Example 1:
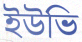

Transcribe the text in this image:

ইউভি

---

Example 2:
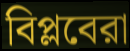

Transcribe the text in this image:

বিপ্লবেরা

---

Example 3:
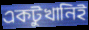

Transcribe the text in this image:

একটুখানিই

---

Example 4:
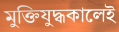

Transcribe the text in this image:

মুক্তিযুদ্ধকালেই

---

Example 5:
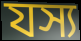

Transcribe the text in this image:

যস্য